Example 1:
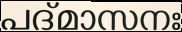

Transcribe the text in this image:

പദ്മാസനഃ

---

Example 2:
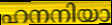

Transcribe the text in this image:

ഹനനിയാ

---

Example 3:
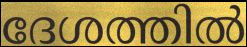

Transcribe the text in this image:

ദേശത്തിൽ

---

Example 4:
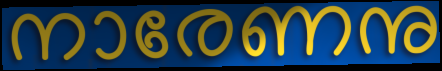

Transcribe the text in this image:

നാരേണനു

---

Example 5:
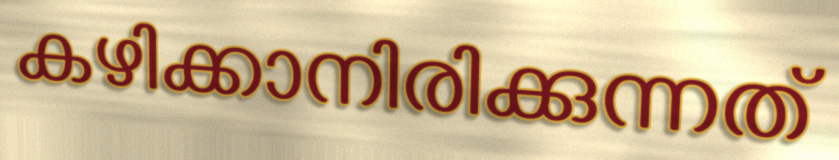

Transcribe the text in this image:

കഴിക്കാനിരിക്കുന്നത്